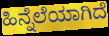
ಹಿನ್ನೆಲೆಯಾಗಿದೆ